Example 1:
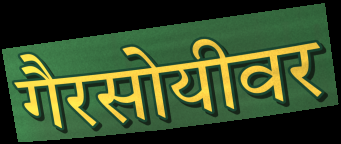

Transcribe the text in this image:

गैरसोयीवर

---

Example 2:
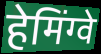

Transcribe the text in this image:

हेमिंग्वे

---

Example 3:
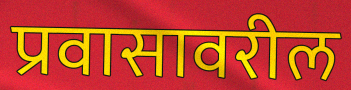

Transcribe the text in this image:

प्रवासावरील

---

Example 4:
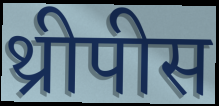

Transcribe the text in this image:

थ्रीपीस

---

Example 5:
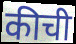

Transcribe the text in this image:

कीची